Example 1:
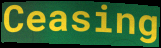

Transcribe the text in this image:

Ceasing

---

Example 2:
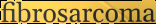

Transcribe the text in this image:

fibrosarcoma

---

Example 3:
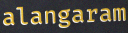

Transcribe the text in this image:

alangaram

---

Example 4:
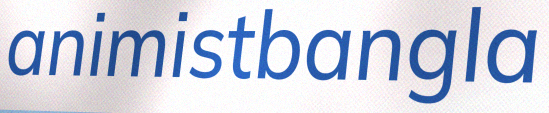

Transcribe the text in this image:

animistbangla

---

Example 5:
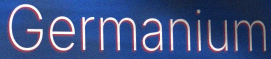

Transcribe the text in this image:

Germanium